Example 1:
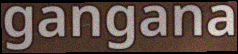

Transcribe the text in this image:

gangana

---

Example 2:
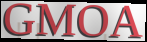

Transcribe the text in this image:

GMOA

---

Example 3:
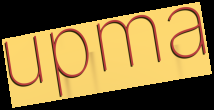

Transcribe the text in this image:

upma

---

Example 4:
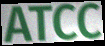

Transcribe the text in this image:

ATCC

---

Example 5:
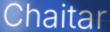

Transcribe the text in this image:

Chaitar